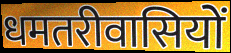
धमतरीवासियों